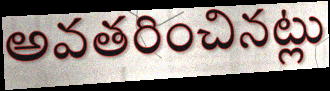
అవతరించినట్లు